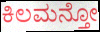
ಕಿಲಮನ್ತೋ